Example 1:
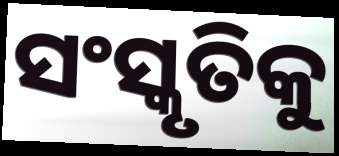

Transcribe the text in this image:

ସଂସ୍କୃତିକୁ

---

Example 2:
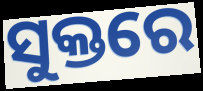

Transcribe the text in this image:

ସୁକ୍ତରେ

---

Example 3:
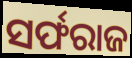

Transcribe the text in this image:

ସର୍ଫରାଜ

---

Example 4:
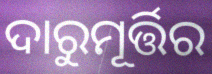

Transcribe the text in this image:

ଦାରୁମୂର୍ତ୍ତିର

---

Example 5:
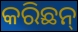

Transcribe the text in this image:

କରିଛନ୍